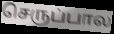
செருப்பால